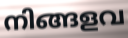
നിങ്ങളവ